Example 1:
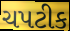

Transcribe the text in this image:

ચપટીક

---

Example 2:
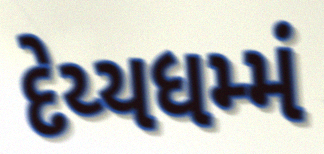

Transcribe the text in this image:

દેય્યધમ્મં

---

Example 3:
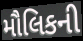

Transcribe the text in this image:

મૌલિકની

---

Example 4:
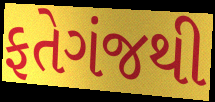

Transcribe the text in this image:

ફતેગંજથી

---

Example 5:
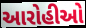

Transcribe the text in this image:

આરોહીઓ